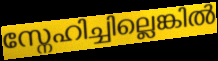
സ്നേഹിച്ചില്ലെങ്കിൽ